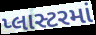
પ્લાસ્ટરમાં